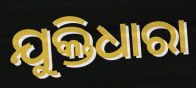
ଯୁକ୍ତିଧାରା